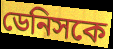
ডেনিসকে